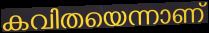
കവിതയെന്നാണ്